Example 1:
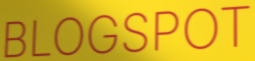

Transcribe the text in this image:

BLOGSPOT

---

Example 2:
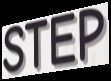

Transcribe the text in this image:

STEP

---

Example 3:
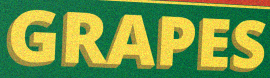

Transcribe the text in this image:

GRAPES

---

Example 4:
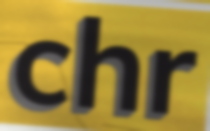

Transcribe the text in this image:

chr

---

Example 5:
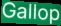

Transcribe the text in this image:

Gallop